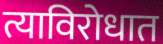
त्याविरोधात